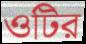
ওটির